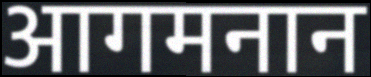
आगमनान